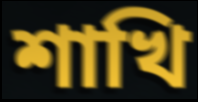
শাখি